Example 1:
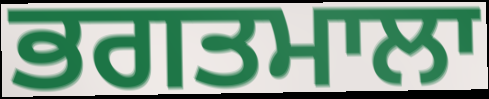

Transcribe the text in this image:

ਭਗਤਮਾਲਾ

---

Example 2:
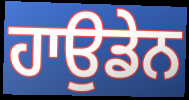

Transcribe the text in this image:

ਹਾਉਡੇਨ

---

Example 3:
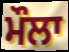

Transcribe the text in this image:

ਮੌਲਾ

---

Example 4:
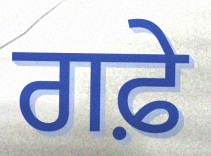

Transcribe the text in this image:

ਗਫ਼ੇ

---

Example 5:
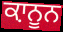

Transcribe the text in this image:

ਕ਼ਾਨੂਨ